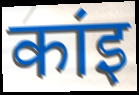
कांइ